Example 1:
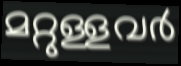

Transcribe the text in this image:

മറ്റുള്ളവർ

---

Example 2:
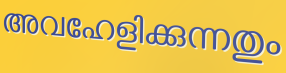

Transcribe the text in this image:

അവഹേളിക്കുന്നതും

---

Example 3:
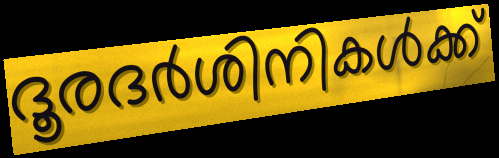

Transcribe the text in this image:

ദൂരദർശിനികൾക്ക്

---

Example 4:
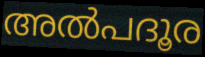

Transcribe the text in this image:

അൽപദൂര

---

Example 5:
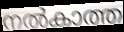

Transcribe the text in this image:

നൽകാത്ത